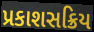
પ્રકાશસક્રિય